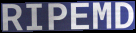
RIPEMD